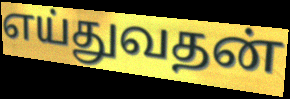
எய்துவதன்